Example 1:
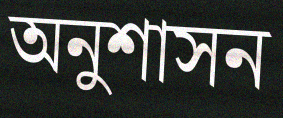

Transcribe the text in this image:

অনুশাসন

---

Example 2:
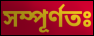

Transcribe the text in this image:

সম্পূর্ণতঃ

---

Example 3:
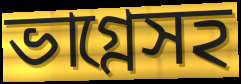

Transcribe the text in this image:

ভাগ্নেসহ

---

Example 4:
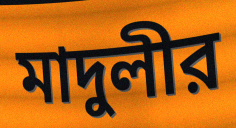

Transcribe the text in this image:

মাদুলীর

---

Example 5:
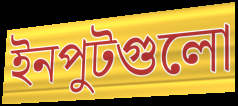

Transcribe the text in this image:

ইনপুটগুলো